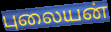
புலையன்